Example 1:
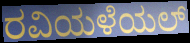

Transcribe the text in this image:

ರವಿಯಳೆಯಲ್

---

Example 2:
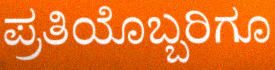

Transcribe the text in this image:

ಪ್ರತಿಯೊಬ್ಬರಿಗೂ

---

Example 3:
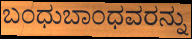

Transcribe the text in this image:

ಬಂಧುಬಾಂಧವರನ್ನು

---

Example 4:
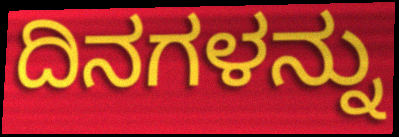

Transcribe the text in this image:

ದಿನಗಳನ್ನು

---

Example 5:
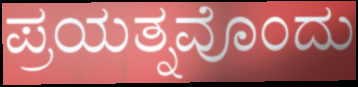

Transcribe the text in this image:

ಪ್ರಯತ್ನವೊಂದು